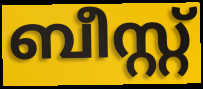
ബീസ്റ്റ്